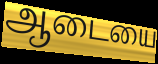
ஆடையை